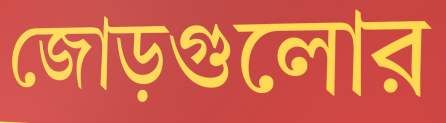
জোড়গুলোর